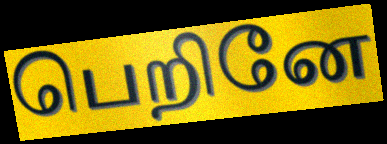
பெறினே